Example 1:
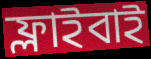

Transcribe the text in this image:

ফ্লাইবাই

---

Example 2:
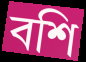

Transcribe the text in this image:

বশি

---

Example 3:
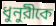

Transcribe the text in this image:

ধুনুরীকে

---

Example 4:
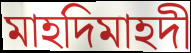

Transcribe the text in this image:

মাহদিমাহদী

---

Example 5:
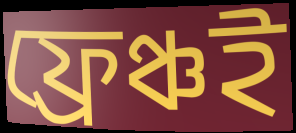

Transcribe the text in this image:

ফ্রেঞ্চই